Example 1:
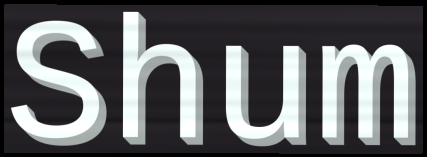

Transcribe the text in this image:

Shum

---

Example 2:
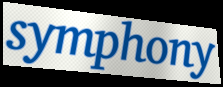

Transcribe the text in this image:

symphony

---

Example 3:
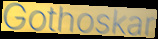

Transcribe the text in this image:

Gothoskar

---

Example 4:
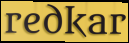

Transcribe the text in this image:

redkar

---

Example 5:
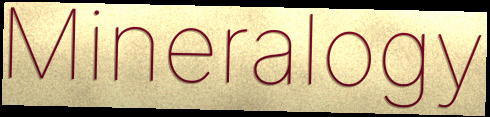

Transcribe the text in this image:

Mineralogy